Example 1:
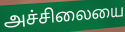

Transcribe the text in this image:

அச்சிலையை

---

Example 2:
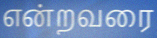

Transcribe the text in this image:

என்றவரை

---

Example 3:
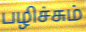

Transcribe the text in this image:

பழிச்சும்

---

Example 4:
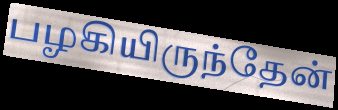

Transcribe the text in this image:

பழகியிருந்தேன்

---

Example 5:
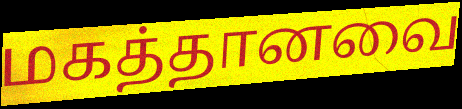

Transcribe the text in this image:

மகத்தானவை